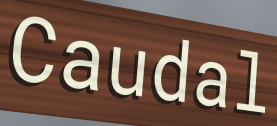
Caudal